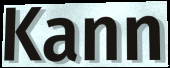
Kann